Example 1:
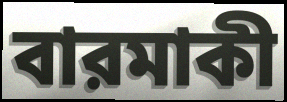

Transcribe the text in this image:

বারমাকী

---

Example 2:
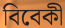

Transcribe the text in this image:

বিবেকী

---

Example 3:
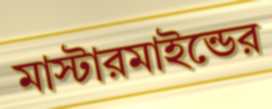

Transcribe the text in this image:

মাস্টারমাইন্ডের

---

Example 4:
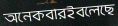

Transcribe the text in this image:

অনেকবারইবলেছে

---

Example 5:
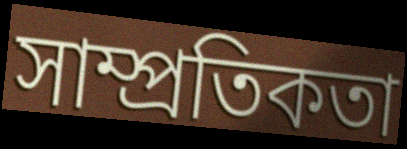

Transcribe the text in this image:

সাম্প্রতিকতা